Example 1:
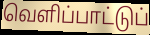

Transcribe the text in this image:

வெளிப்பாட்டுப்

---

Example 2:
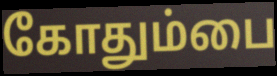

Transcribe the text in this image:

கோதும்பை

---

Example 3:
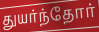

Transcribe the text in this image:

துயர்ந்தோர்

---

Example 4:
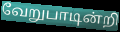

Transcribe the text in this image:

வேறுபாடின்றி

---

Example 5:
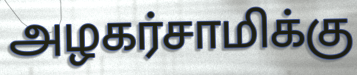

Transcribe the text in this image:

அழகர்சாமிக்கு